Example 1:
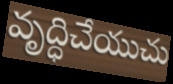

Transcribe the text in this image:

వృద్ధిచేయుచు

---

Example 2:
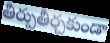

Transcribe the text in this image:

తీర్పుతీర్చకుండా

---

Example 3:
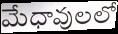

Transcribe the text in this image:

మేధావులలో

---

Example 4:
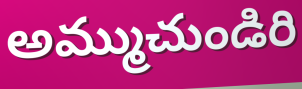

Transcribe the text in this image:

అమ్ముచుండిరి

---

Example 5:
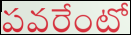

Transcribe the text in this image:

పవరేంటో